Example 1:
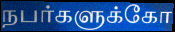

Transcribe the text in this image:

நபர்களுக்கோ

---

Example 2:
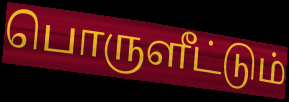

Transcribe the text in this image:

பொருளீட்டும்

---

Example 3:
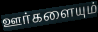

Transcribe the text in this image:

ஊர்களையும்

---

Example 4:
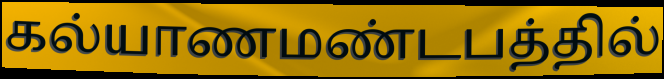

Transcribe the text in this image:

கல்யாணமண்டபத்தில்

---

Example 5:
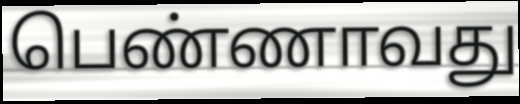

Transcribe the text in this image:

பெண்ணாவது